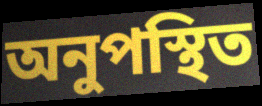
অনুপস্থিত